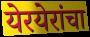
येरयेरांचा